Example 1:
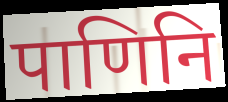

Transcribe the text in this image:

पाणिनि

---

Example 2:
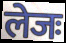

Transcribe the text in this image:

लेजः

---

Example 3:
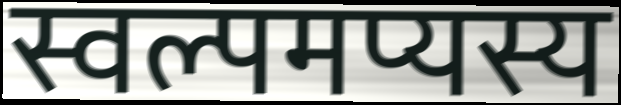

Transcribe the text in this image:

स्वल्पमप्यस्य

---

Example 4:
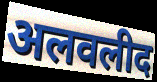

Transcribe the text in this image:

अलवलीद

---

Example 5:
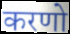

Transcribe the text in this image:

करणो